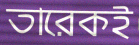
তারেকই